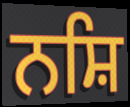
ਨਸ਼ਿ